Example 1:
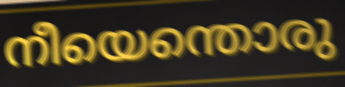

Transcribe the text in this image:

നീയെന്തൊരു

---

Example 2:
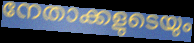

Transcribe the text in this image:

നേതാക്കളുടെയും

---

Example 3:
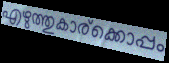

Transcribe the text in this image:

എഴുത്തുകാര്ക്കൊപ്പം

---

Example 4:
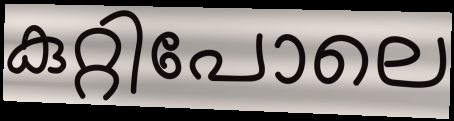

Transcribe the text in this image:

കുറ്റിപോലെ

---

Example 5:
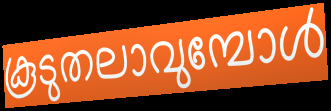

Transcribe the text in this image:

കൂടുതലാവുമ്പോൾ